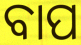
ବାପ